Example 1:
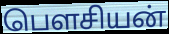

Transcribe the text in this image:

பௌசியன்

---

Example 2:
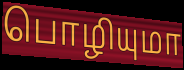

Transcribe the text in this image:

பொழியுமா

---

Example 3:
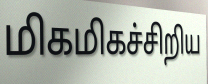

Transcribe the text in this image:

மிகமிகச்சிறிய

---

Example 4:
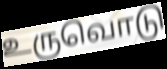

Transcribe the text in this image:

உருவொடு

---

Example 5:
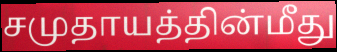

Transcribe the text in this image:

சமுதாயத்தின்மீது